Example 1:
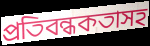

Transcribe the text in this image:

প্রতিবন্ধকতাসহ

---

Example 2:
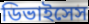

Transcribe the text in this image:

ডিভাইসেস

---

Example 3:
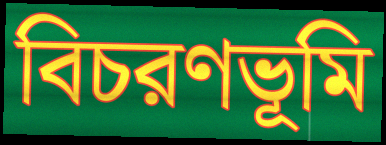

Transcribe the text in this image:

বিচরণভূমি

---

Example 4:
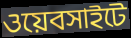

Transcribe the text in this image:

ওয়েবসাইটে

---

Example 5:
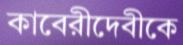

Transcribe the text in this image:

কাবেরীদেবীকে